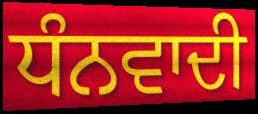
ਧੰਨਵਾਦੀ